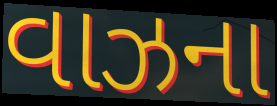
વાઝના